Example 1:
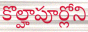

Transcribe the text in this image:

కొల్హాపూర్లోని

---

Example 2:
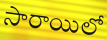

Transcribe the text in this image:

సారాయిలో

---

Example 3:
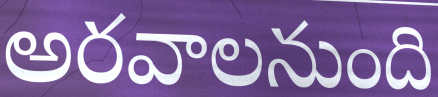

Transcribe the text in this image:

అరవాలనుంది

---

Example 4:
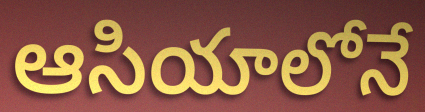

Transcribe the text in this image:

ఆసియాలోనే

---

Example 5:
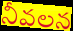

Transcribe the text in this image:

నీవలన